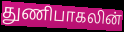
துணிபாகலின்